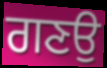
ਗਣਉ